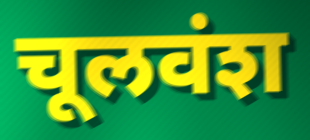
चूलवंश